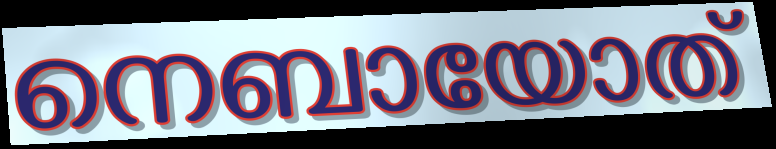
നെബായോത്